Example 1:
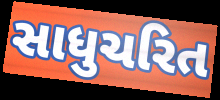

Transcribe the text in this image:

સાધુચરિત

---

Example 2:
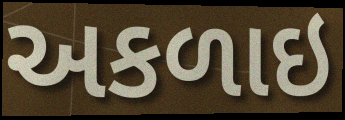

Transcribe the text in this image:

અકળાઇ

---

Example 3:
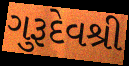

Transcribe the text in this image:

ગુરૂદેવશ્રી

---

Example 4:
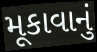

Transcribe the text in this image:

મૂકાવાનું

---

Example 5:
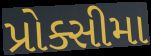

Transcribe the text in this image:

પ્રોક્સીમા